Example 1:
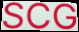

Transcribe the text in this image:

SCG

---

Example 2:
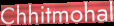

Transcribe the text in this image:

Chhitmohal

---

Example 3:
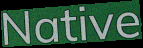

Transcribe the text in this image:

Native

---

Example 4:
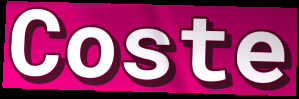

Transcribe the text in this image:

Coste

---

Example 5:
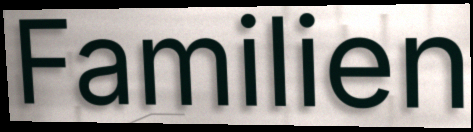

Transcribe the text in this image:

Familien